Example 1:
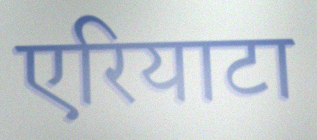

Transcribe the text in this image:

एरियाटा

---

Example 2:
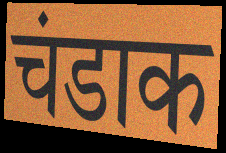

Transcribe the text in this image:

चंडाक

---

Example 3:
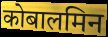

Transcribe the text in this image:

कोबालमिन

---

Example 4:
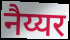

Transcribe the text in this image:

नैय्यर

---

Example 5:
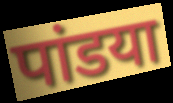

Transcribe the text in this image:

पांडया